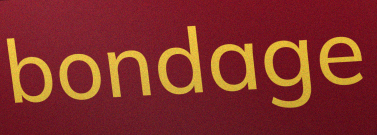
bondage